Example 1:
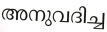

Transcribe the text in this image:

അനുവദിച്ച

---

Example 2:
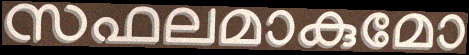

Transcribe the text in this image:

സഫലമാകുമോ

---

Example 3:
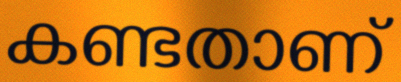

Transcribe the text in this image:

കണ്ടതാണ്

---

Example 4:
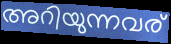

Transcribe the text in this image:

അറിയുന്നവര്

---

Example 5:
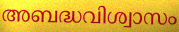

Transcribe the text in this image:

അബദ്ധവിശ്വാസം